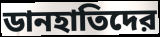
ডানহাতিদের